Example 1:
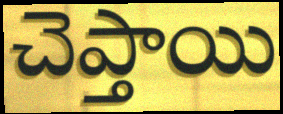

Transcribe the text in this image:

చెప్తాయి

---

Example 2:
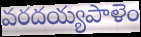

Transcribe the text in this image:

వరదయ్యపాళెం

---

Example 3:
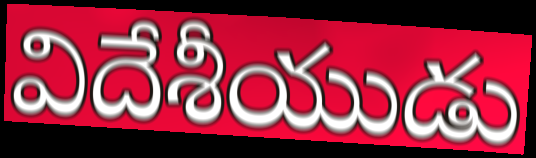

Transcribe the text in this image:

విదేశీయుడు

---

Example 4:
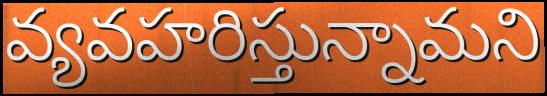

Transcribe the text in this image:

వ్యవహరిస్తున్నామని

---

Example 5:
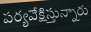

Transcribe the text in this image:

పర్యవేక్షిస్తున్నారు